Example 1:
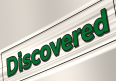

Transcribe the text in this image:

Discovered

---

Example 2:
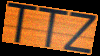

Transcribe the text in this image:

TTZ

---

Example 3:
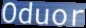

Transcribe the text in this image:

Oduor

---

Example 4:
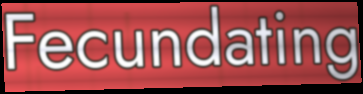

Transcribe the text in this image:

Fecundating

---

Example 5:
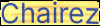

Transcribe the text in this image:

Chairez